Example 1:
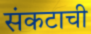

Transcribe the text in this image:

संकटाची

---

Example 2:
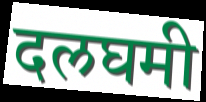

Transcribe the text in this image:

दलघमी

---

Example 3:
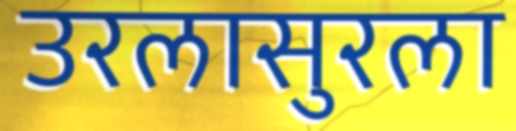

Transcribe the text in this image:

उरलासुरला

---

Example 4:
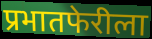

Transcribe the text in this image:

प्रभातफेरीला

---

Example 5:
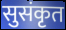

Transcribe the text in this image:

सुसंकृत